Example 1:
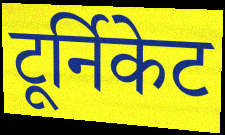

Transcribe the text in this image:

टूर्निकेट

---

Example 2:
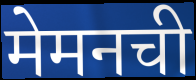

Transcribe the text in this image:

मेमनची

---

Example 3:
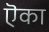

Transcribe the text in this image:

ऎका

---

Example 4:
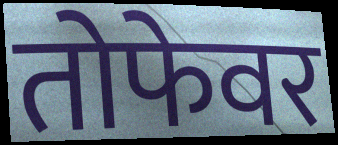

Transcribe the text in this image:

तोफेवर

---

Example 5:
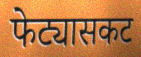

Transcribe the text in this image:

फेट्यासकट